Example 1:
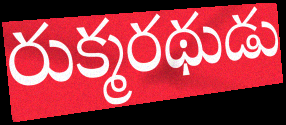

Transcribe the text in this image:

రుక్మరథుడు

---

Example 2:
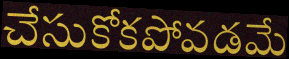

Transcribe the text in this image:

చేసుకోకపోవడమే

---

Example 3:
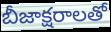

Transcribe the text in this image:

బీజాక్షరాలతో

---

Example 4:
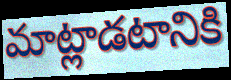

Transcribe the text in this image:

మాట్లాడటానికి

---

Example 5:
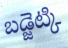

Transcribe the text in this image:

బడ్జెట్కి